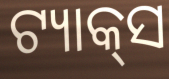
ଟ୍ୟାକ୍‌ସ